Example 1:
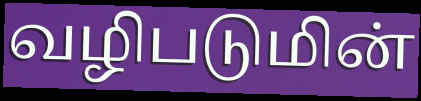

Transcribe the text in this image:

வழிபடுமின்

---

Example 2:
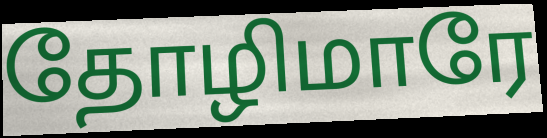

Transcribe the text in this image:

தோழிமாரே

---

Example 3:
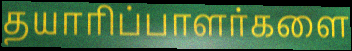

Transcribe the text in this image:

தயாரிப்பாளர்களை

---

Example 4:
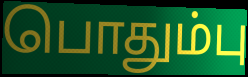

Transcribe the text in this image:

பொதும்பு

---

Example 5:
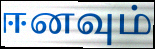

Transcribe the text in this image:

ஈனவும்